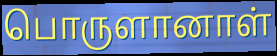
பொருளானாள்